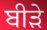
ਬੀੜੇ